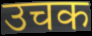
उचक